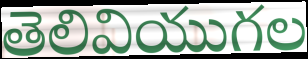
తెలివియుగల